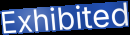
Exhibited